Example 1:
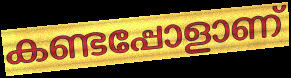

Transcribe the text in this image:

കണ്ടപ്പോളാണ്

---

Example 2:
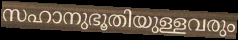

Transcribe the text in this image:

സഹാനുഭൂതിയുള്ളവരും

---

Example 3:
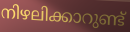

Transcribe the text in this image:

നിഴലിക്കാറുണ്ട്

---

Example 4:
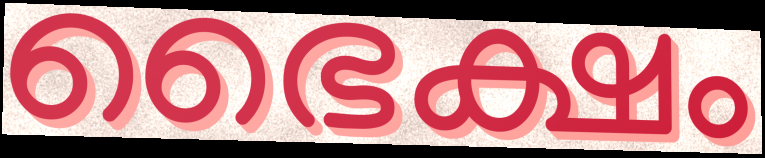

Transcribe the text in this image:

ഭൈക്ഷം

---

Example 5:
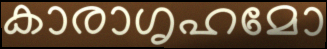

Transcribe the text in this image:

കാരാഗൃഹമോ